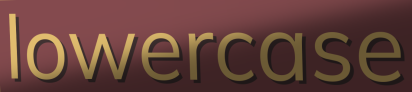
lowercase